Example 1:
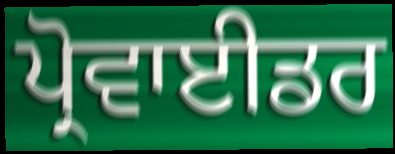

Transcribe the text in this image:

ਪ੍ਰੋਵਾਈਡਰ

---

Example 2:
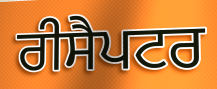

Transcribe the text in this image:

ਰੀਸੈਪਟਰ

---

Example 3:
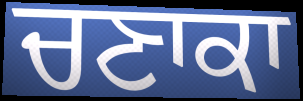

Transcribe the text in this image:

ਚਣਾਕਾ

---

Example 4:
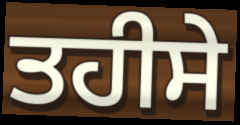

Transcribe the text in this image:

ਤਹੀਸੇ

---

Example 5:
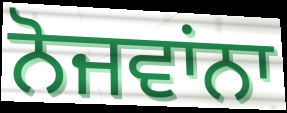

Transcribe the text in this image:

ਨੋਜਵਾਂਨਾ